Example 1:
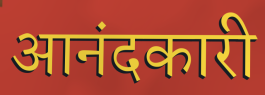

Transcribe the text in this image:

आनंदकारी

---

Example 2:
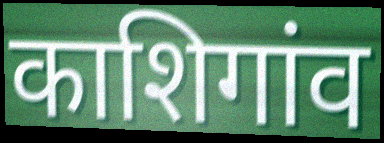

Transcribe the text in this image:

काशिगांव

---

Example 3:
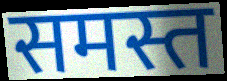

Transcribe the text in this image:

समस्त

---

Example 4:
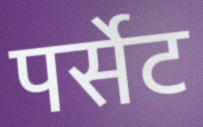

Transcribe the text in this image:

पर्सेट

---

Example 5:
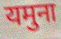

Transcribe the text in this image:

यमुना